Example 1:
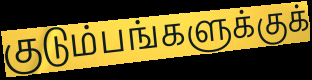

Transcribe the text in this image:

குடும்பங்களுக்குக்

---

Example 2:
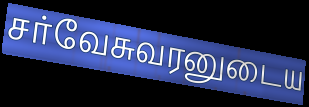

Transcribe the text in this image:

சர்வேசுவரனுடைய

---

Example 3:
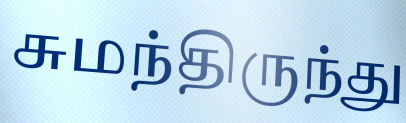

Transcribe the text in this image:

சுமந்திருந்து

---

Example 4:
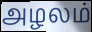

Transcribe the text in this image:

அழலம்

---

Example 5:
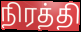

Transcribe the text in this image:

நிரத்தி